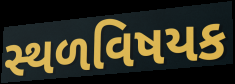
સ્થળવિષયક